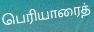
பெரியாரைத்